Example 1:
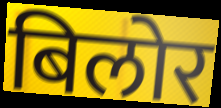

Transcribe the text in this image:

बिलोर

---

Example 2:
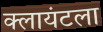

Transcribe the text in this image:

क्लायंटला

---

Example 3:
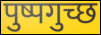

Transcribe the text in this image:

पुष्पगुच्छ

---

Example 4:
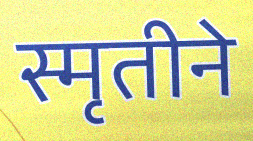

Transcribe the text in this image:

स्मृतीने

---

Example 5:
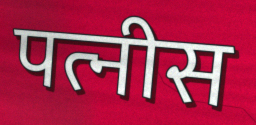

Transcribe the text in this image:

पत्‍नीस